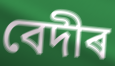
বেদীৰ